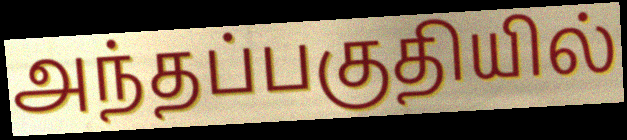
அந்தப்பகுதியில்